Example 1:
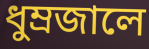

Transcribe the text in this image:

ধুম্রজালে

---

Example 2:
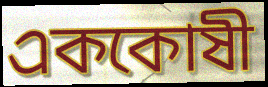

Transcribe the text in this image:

এককোষী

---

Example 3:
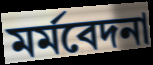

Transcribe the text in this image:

মর্মবেদনা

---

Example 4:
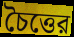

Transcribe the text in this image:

চৈত্তের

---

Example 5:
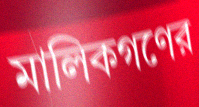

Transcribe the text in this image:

মালিকগণের